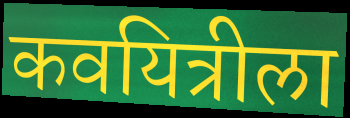
कवयित्रीला